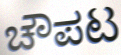
ಚೌಪಟ